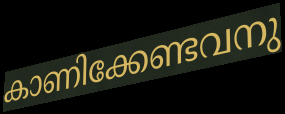
കാണിക്കേണ്ടവനു